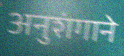
अनुशंगाने